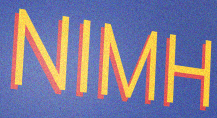
NIMH